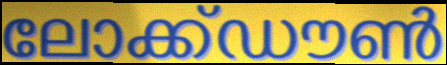
ലോക്ക്ഡൗൺ